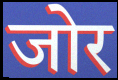
जोर